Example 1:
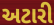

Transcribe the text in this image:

અટારી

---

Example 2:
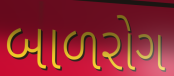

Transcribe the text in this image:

બાળરોગ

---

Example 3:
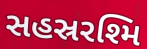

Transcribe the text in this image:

સહસ્રરશ્મિ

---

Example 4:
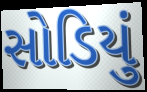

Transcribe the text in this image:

સોડિયું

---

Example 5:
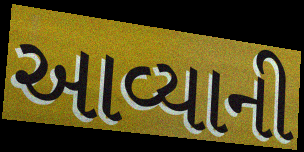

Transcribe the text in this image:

આવ્યાની